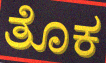
ತೊಕ